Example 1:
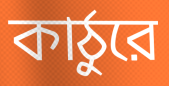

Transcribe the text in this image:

কাঠুরে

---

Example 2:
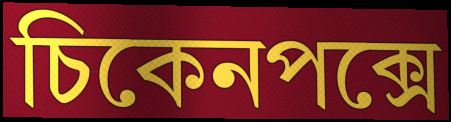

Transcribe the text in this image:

চিকেনপক্সে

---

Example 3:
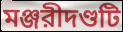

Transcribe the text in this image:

মঞ্জরীদণ্ডটি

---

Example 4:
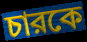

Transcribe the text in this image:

চারকে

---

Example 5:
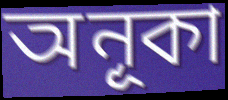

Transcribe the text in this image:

অনূকা